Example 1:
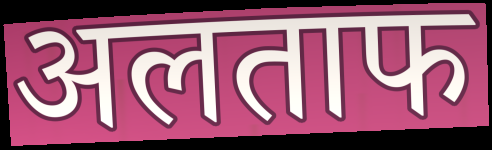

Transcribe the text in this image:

अलताफ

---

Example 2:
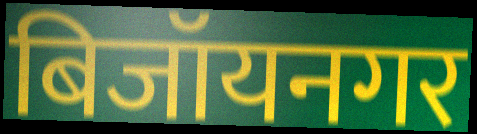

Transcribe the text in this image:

बिजॉयनगर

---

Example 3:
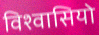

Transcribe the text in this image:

विश्वासियो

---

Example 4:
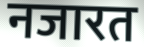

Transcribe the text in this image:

नजारत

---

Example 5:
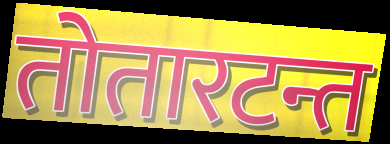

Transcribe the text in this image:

तोतारटन्त